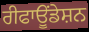
ਰੀਫਾਊਂਡੇਸ਼ਨ